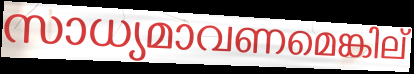
സാധ്യമാവണമെങ്കില്